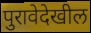
पुरावेदेखील